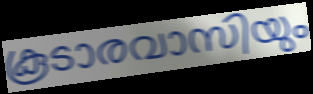
കൂടാരവാസിയും